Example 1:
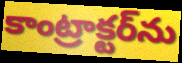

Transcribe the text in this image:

కాంట్రాక్టర్‌ను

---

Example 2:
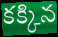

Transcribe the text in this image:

కక్కిన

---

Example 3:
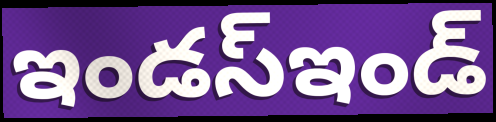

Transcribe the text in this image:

ఇండస్ఇండ్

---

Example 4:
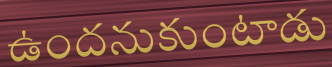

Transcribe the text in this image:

ఉందనుకుంటాడు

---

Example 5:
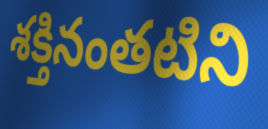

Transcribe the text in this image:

శక్తినంతటిని